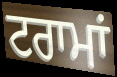
ਟਰਾਮਾਂ